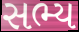
સભ્ય